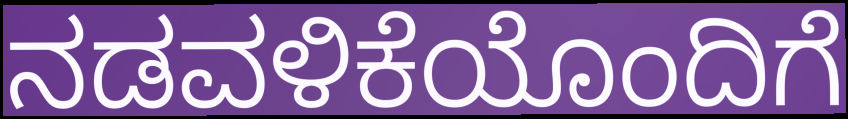
ನಡವಳಿಕೆಯೊಂದಿಗೆ